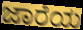
ಜಾರೆಯ